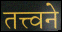
तत्त्वने